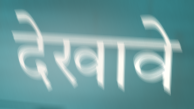
देखावे